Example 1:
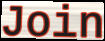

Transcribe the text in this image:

Join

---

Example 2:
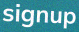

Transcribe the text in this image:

signup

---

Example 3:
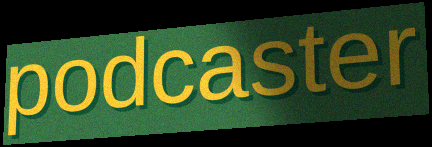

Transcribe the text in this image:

podcaster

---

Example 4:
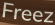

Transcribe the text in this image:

Freez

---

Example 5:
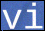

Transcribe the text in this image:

vi